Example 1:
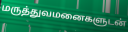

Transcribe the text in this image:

மருத்துவமனைகளுடன்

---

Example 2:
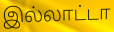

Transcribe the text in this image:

இல்லாட்டா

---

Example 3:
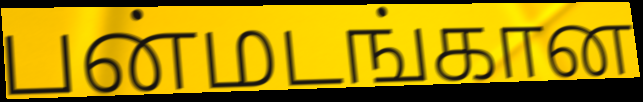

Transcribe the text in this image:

பன்மடங்கான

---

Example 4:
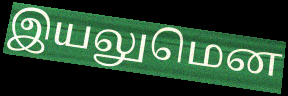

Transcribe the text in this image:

இயலுமென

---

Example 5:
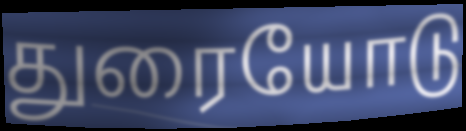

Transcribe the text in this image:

துரையோடு